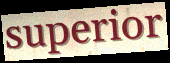
superior